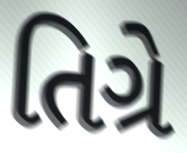
તિગ્રે